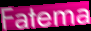
Fatema